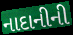
નાદાનીની